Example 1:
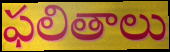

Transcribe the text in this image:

ఫలితాలు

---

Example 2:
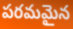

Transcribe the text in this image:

పరమమైన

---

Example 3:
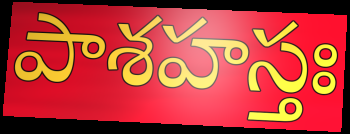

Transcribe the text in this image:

పాశహస్తః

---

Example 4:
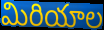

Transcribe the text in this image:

మిరియాల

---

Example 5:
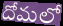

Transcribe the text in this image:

దోమలో